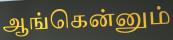
ஆங்கென்னும்